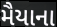
મૈયાના